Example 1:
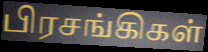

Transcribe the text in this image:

பிரசங்கிகள்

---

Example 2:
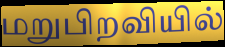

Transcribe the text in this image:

மறுபிறவியில்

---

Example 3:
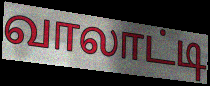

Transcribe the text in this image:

வாலாட்டி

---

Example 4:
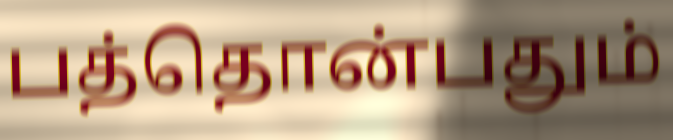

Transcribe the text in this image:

பத்தொன்பதும்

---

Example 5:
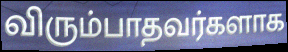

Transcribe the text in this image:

விரும்பாதவர்களாக